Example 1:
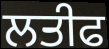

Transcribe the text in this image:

ਲਤੀਫ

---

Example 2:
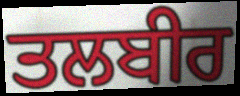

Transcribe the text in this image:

ਤਲਬੀਰ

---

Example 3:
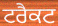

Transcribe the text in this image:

ਟਰੈਕਟ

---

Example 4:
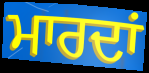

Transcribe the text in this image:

ਮਾਰਦਾਂ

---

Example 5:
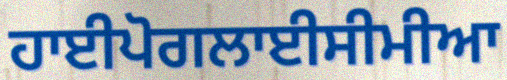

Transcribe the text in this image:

ਹਾਈਪੋਗਲਾਈਸੀਮੀਆ